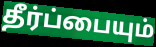
தீர்ப்பையும்